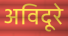
अविदूरे